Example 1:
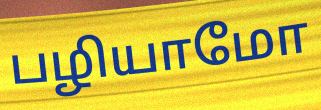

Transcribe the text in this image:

பழியாமோ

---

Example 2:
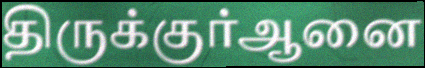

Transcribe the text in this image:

திருக்குர்ஆனை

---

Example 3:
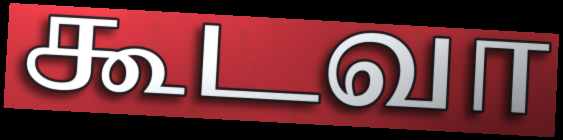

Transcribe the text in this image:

கூடவா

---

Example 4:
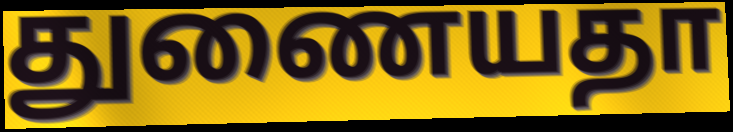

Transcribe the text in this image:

துணையதா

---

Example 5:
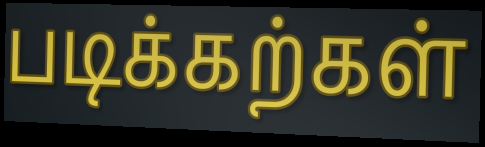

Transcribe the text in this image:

படிக்கற்கள்